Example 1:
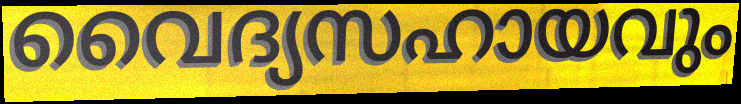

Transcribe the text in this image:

വൈദ്യസഹായവും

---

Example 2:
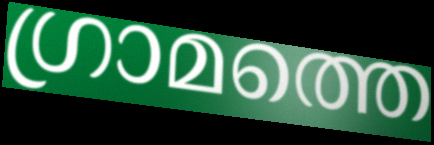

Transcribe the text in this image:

ഗ്രാമത്തെ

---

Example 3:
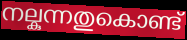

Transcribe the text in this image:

നല്കുന്നതുകൊണ്ട്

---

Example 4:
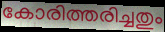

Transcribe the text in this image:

കോരിത്തരിച്ചതും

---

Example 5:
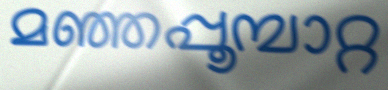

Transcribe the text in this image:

മഞ്ഞപ്പൂമ്പാറ്റ